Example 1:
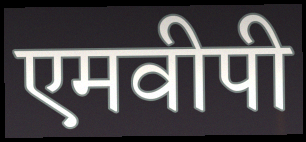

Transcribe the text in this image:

एमवीपी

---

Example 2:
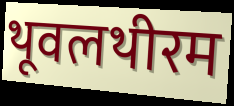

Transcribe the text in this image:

थूवलथीरम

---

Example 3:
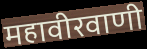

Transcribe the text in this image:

महावीरवाणी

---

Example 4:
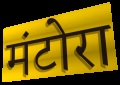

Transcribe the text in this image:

मंटोरा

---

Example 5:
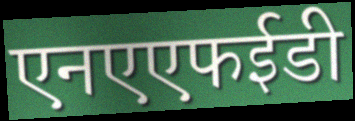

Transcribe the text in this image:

एनएएफईडी